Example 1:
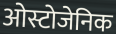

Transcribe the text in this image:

ओस्टोजेनिक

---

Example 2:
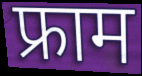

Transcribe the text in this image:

फ्राम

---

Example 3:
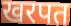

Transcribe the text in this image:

खरपत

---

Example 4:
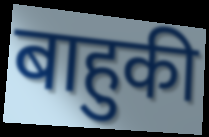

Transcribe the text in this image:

बाहुकी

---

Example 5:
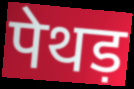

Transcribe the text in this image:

पेथड़